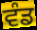
ਵੰਡ